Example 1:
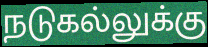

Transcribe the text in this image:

நடுகல்லுக்கு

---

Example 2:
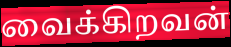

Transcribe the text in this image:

வைக்கிறவன்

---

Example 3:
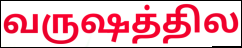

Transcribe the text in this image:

வருஷத்தில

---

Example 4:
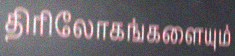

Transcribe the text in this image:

திரிலோகங்களையும்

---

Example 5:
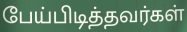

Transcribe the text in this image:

பேய்பிடித்தவர்கள்